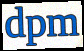
dpm